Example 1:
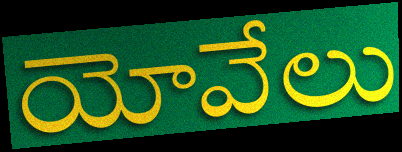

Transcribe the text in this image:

యోవేలు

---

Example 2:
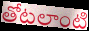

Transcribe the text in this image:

తోటలాంటి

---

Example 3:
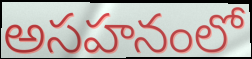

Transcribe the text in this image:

అసహనంలో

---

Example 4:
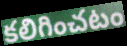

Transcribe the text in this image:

కలిగించటం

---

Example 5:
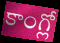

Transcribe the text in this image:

కాంగ్లో